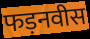
फड़नवीस